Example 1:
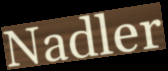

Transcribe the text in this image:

Nadler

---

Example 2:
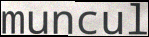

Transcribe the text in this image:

muncul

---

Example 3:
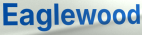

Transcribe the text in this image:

Eaglewood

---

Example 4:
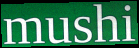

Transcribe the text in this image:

mushi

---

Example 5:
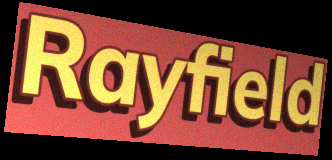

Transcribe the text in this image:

Rayfield